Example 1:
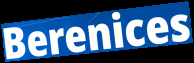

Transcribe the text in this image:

Berenices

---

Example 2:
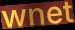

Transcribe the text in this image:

wnet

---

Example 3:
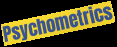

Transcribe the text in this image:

Psychometrics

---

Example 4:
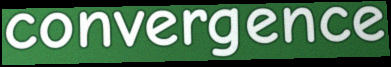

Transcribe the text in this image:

convergence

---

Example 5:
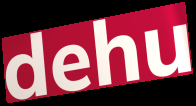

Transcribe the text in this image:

dehu